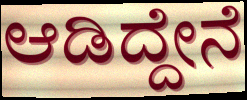
ಆಡಿದ್ದೇನೆ